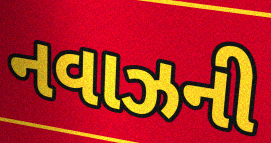
નવાઝની